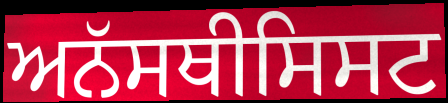
ਅਨੱਸਥੀਸਿਸਟ